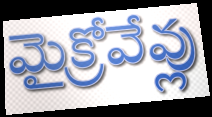
మైక్రోవేవ్లు